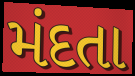
મંદતા